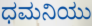
ಧಮನಿಯು